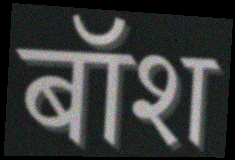
बॉश